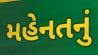
મહેનતનું